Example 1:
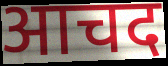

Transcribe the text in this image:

आचद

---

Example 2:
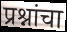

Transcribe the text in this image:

प्रश्नांचा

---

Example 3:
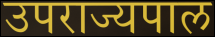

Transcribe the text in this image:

उपराज्यपाल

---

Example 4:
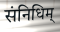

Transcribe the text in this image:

संनिधिम्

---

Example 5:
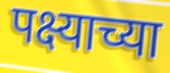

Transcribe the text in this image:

पक्ष्याच्या